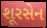
શૂરસેન